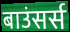
बाउंसर्स